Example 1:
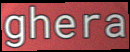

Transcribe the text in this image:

ghera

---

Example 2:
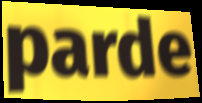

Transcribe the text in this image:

parde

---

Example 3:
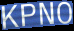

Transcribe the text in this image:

KPNO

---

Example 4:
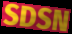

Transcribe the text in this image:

SDSN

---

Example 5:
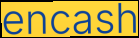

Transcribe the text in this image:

encash